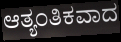
ಆತ್ಯಂತಿಕವಾದ